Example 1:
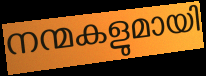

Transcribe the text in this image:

നന്മകളുമായി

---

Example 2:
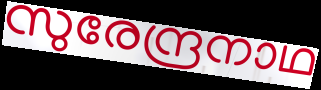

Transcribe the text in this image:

സുരേന്ദ്രനാഥ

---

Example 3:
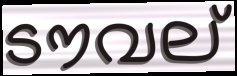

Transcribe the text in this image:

ടൗവല്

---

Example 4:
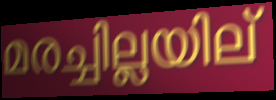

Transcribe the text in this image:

മരച്ചില്ലയില്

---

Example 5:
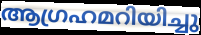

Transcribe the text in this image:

ആഗ്രഹമറിയിച്ചു